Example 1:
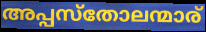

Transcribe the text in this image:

അപ്പസ്തോലന്മാര്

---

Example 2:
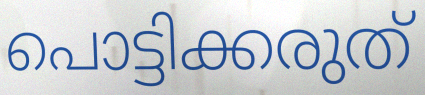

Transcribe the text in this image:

പൊട്ടിക്കരുത്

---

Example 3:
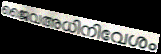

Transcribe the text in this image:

ജൈവഅധിനിവേശം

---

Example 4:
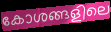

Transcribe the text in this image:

കോശങ്ങളിലെ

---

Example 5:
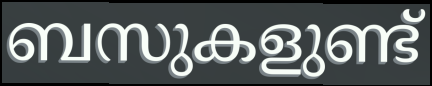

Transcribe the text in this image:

ബസുകളുണ്ട്